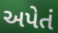
અપેતં